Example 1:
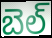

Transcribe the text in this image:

బెల్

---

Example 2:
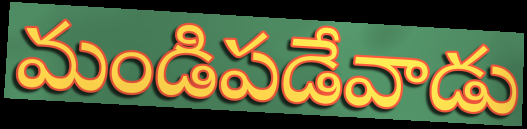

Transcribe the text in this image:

మండిపడేవాడు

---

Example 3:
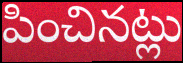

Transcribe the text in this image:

పించినట్లు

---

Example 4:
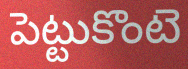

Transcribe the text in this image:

పెట్టుకొంటె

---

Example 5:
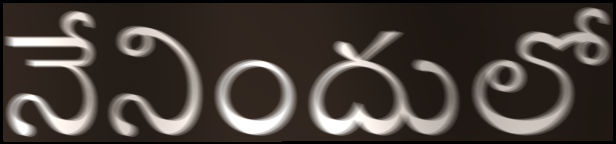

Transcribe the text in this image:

నేనిందులో